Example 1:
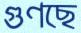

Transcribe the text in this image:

গুণছে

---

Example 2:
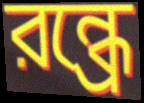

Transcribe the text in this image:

রন্ধ্রে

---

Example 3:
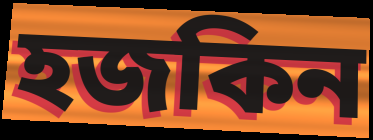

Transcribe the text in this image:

হজকিন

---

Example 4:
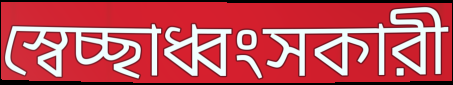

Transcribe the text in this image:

স্বেচ্ছাধ্বংসকারী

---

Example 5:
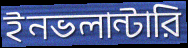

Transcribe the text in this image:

ইনভলান্টারি